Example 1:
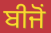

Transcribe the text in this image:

ਬੀਜੋਂ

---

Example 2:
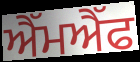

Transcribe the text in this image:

ਐੱਮਐੱਫ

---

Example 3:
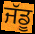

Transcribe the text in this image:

ਜੱਡੂ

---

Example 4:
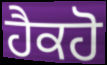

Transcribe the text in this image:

ਹੈਕਹੋ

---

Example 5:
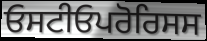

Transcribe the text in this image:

ਓਸਟੀਓਪਰੋਰਿਸਸ